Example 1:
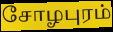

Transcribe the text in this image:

சோழபுரம்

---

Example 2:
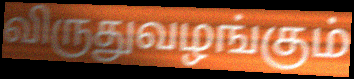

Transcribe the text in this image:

விருதுவழங்கும்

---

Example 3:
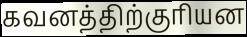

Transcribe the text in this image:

கவனத்திற்குரியன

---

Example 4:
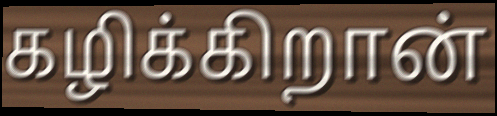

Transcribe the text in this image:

கழிக்கிறான்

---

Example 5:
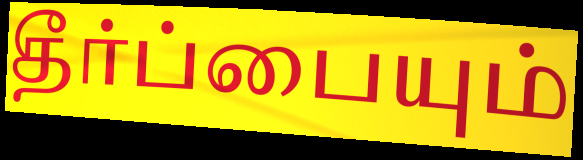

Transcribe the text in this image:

தீர்ப்பையும்